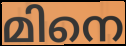
മിനെ